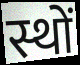
स्थों